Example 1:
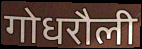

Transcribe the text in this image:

गोधरौली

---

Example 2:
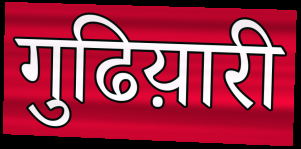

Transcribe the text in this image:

गुढिय़ारी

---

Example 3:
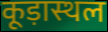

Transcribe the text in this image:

कूड़ास्थल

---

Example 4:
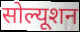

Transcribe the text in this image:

सोल्यूशन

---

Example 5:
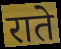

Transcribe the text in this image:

राते